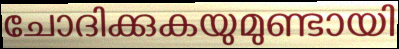
ചോദിക്കുകയുമുണ്ടായി